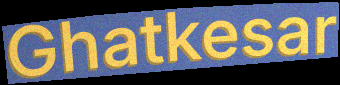
Ghatkesar